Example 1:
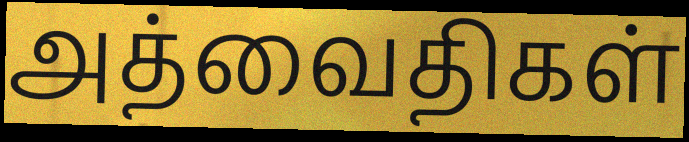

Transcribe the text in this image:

அத்வைதிகள்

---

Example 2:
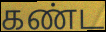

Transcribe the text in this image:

கண்ட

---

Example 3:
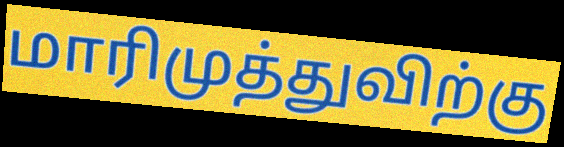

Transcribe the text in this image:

மாரிமுத்துவிற்கு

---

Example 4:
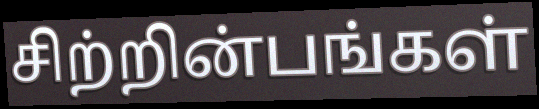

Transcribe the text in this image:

சிற்றின்பங்கள்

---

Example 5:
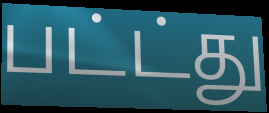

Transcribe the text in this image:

பட்ட்து